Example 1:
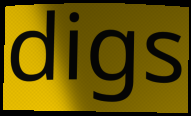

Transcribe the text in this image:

digs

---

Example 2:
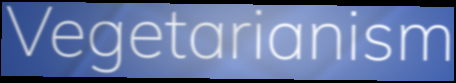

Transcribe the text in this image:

Vegetarianism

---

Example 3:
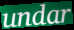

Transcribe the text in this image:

undar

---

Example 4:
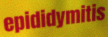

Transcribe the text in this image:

epididymitis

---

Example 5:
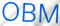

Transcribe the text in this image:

OBM